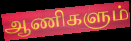
ஆணிகளும்